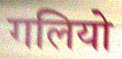
गलियो